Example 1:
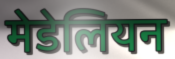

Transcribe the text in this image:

मेडेलियन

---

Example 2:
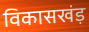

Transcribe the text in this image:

विकासखंड़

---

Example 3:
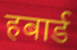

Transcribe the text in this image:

हबार्ड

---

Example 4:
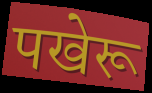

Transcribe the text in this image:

पखेरू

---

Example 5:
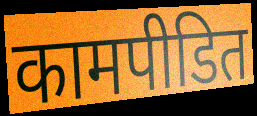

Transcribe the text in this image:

कामपीडित